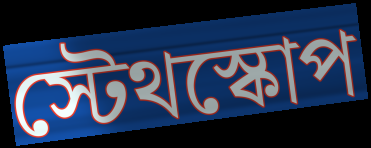
স্টেথস্কোপ